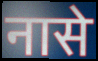
नासे